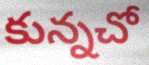
కున్నచో